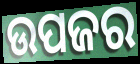
ଉପଜର